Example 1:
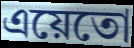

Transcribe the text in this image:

এয়েতো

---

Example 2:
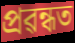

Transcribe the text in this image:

প্ৰৱন্ধত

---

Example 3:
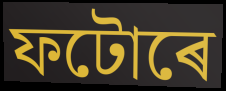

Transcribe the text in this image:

ফটোৰে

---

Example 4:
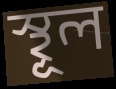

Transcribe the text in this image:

স্থূল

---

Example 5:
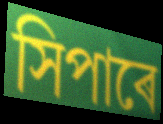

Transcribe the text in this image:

সিপাৰে